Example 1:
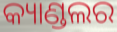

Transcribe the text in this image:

କ୍ୟାଣ୍ଡଲର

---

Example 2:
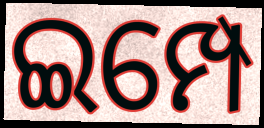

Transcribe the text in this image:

ଇମ୍ପେ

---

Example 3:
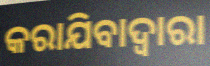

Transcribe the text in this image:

କରାଯିବାଦ୍ୱାରା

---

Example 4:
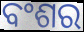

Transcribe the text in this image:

ବଂଶର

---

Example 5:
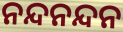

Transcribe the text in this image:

ନନ୍ଦନନ୍ଦନ